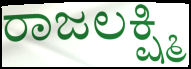
ರಾಜಲಕ್ಷ್ಮಿ